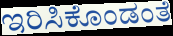
ಇರಿಸಿಕೊಂಡಂತೆ